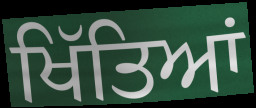
ਖਿੱਤਿਆਂ